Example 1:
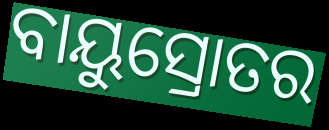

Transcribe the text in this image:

ବାୟୁସ୍ରୋତର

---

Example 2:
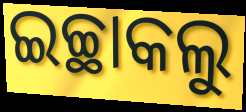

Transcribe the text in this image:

ଇଚ୍ଛାକଲୁ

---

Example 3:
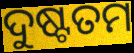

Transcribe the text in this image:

ଦୁଷ୍ଟତମ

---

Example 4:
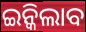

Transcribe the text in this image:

ଇନ୍କିଲାବ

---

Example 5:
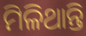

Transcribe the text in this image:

ମିଳିଥାନ୍ତି